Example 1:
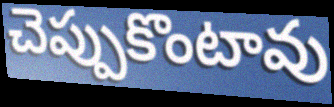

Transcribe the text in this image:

చెప్పుకొంటావు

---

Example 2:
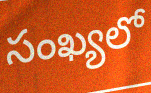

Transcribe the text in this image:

సంఖ్యలో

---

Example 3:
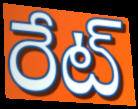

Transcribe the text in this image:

రేట్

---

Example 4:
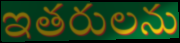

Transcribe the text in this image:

ఇతరులను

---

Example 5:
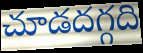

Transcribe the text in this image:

చూడదగ్గది